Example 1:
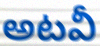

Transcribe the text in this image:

అటవీ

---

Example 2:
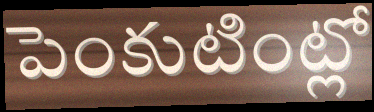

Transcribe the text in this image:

పెంకుటింట్లో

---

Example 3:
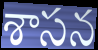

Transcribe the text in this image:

శాసన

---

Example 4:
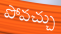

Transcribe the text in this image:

పోవచ్చు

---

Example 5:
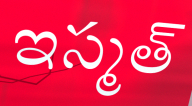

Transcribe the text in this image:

ఇస్మత్